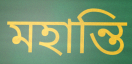
মহান্তি